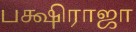
பக்ஷிராஜா